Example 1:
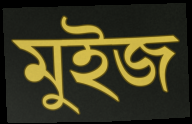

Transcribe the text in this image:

মুইজ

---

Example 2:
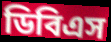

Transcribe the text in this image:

ডিবিএস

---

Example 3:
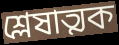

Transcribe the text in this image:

শ্লেষাত্মক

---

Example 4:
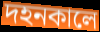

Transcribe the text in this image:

দহনকালে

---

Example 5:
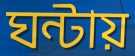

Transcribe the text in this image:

ঘন্টায়